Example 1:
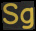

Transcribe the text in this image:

Sg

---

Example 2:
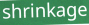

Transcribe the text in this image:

shrinkage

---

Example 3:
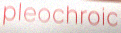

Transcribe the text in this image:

pleochroic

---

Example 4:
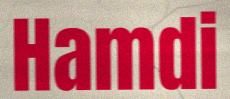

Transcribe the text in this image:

Hamdi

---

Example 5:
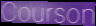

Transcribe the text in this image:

Courson